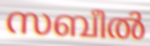
സബീൽ